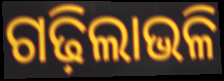
ଗଢ଼ିଲାଭଳି